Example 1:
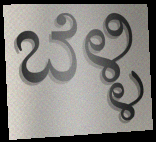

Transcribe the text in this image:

ಬೆಳ್ಳಿ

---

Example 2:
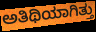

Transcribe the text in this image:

ಅತಿಥಿಯಾಗಿತ್ತು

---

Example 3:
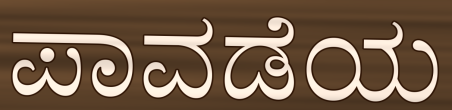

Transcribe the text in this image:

ಪಾವಡೆಯ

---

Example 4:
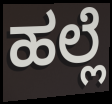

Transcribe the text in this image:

ಹಲ್ಲೆ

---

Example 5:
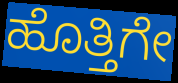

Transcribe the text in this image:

ಹೊತ್ತಿಗೇ